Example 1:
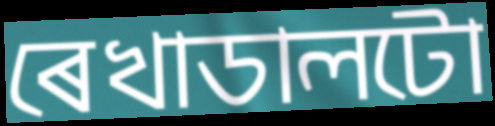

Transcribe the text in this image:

ৰেখাডালটো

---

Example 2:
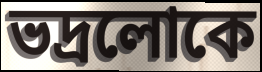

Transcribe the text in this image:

ভদ্ৰলোকে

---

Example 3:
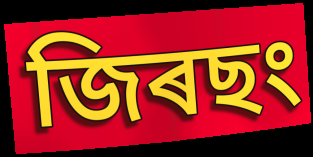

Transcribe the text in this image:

জিৰছং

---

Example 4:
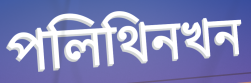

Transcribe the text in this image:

পলিথিনখন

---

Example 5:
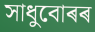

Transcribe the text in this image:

সাধুবোৰৰ